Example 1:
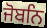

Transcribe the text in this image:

ਜੋਬਨਿ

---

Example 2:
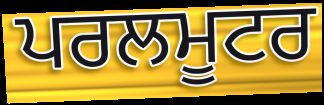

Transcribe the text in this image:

ਪਰਲਮੂਟਰ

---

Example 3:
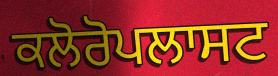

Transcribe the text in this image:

ਕਲੋਰੋਪਲਾਸਟ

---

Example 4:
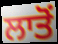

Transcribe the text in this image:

ਲਾਤੋਂ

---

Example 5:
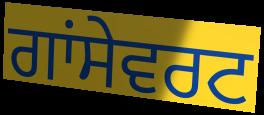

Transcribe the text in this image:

ਗਾਂਸੇਵਰਟ